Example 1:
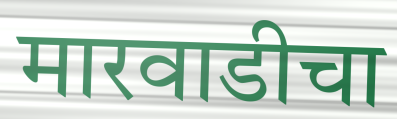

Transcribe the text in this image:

मारवाडीचा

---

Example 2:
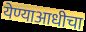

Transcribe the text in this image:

येण्याआधीचा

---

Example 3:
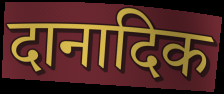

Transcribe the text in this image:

दानादिक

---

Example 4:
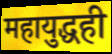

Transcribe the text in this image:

महायुद्धही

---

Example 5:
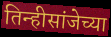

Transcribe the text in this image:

तिन्हीसांजेच्या